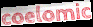
coelomic